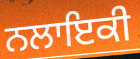
ਨਲਾਇਕੀ